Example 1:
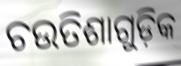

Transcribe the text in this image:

ଚଉତିଶାଗୁଡ଼ିକ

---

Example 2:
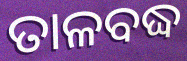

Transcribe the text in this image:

ତାଳବଦ୍ଧ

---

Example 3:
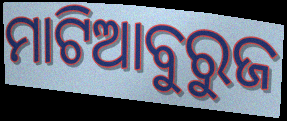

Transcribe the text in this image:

ମାଟିଆବୁରୁଜ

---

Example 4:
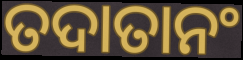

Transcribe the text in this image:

ତଦାତାନଂ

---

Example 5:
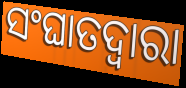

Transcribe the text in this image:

ସଂଘାତଦ୍ୱାରା